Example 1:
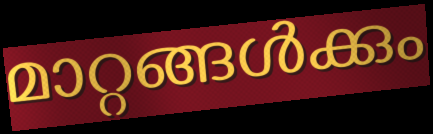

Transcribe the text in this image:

മാറ്റങ്ങൾക്കും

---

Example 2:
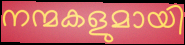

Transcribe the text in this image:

നന്മകളുമായി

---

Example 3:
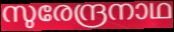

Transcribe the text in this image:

സുരേന്ദ്രനാഥ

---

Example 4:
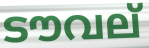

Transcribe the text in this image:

ടൗവല്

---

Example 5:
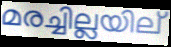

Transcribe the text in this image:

മരച്ചില്ലയില്